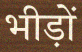
भीड़ों